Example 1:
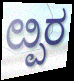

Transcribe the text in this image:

ೞ್ಪರ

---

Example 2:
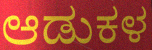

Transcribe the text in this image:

ಆಡುಕಳ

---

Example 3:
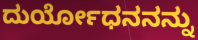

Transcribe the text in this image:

ದುರ್ಯೋಧನನನ್ನು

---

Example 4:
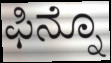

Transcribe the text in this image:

ಫಿನ್ನೊ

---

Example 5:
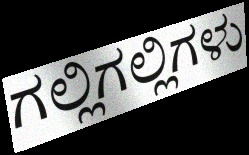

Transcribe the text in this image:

ಗಲ್ಲಿಗಲ್ಲಿಗಳು